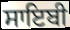
ਸਾਇਬੀ